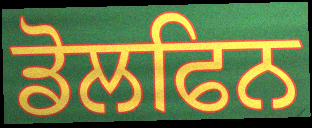
ਡੋਲਫਿਨ